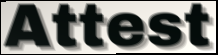
Attest